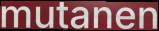
mutanen